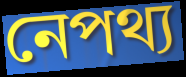
নেপথ্য